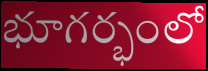
భూగర్భంలో